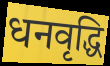
धनवृद्धि